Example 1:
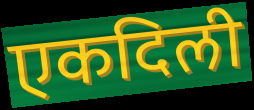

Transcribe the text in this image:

एकदिली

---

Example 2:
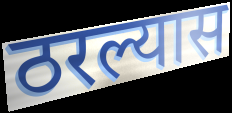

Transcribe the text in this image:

ठरल्यास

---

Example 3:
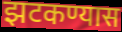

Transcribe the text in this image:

झटकण्यास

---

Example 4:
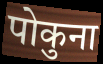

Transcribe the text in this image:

पोकुना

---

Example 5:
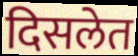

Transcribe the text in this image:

दिसलेत